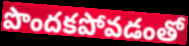
పొందకపోవడంతో